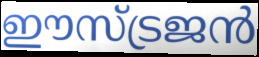
ഈസ്ട്രജൻ